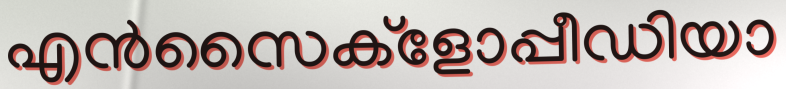
എൻസൈക്ളോപ്പീഡിയാ